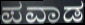
ಪವಾಡ